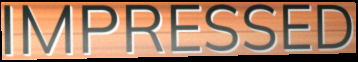
IMPRESSED